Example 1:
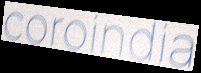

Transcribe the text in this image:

coroindia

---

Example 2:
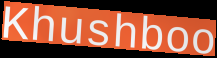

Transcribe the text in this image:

Khushboo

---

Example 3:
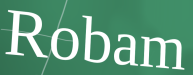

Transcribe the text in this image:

Robam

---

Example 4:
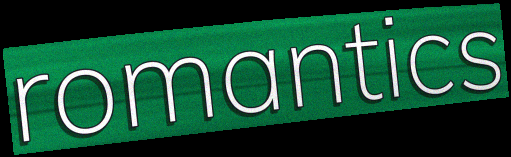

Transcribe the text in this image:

romantics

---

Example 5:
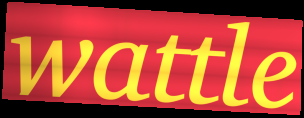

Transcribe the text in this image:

wattle